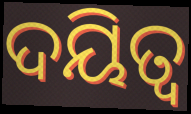
ଦୟିତ୍ୱ